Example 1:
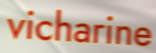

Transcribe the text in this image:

vicharine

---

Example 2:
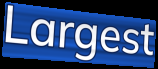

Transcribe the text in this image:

Largest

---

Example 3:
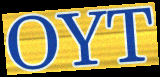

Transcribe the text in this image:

OYT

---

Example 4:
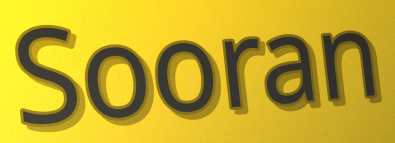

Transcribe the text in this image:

Sooran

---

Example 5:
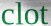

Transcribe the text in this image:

clot